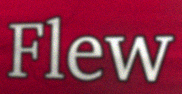
Flew